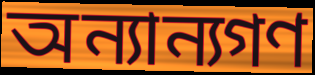
অন্যান্যগণ